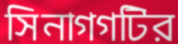
সিনাগগটির